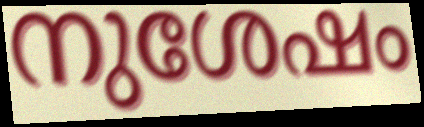
നുശേഷം